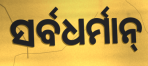
ସର୍ବଧର୍ମାନ୍